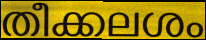
തീക്കലശം